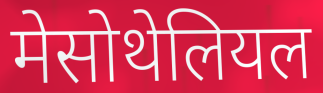
मेसोथेलियल